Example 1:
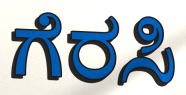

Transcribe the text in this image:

ಗೆರಸಿ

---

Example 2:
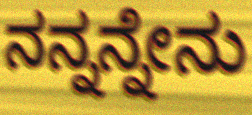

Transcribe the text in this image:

ನನ್ನನ್ನೇನು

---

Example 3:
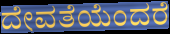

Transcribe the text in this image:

ದೇವತೆಯೆಂದರೆ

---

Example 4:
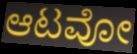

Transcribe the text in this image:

ಆಟವೋ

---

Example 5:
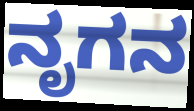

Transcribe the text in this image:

ನೃಗನ